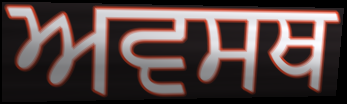
ਅਵਸਥ